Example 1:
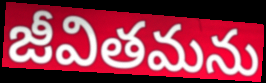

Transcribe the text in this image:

జీవితమను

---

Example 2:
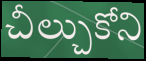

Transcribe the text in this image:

చీల్చుకోని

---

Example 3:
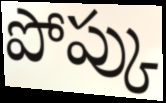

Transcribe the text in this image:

పోప్కు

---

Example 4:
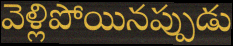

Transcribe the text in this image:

వెళ్లిపోయినప్పుడు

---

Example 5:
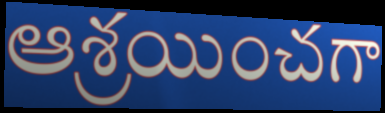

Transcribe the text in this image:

ఆశ్రయించగా